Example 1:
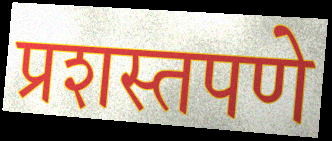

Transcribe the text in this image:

प्रशस्तपणे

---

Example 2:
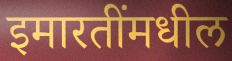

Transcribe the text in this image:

इमारतींमधील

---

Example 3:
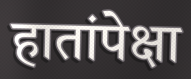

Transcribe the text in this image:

हातांपेक्षा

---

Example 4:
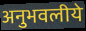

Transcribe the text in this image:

अनुभवलीये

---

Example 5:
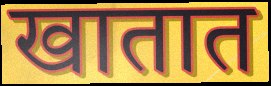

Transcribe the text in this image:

खातात